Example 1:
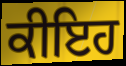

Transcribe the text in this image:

ਕੀਇਹ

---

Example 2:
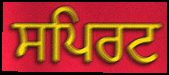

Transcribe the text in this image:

ਸਪਿਰਟ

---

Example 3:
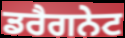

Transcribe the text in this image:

ਡਰੈਗਨੇਟ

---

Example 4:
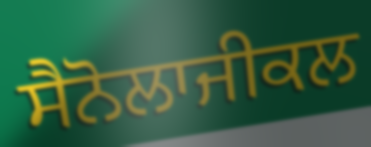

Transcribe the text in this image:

ਸੈਨੋਲਾਜੀਕਲ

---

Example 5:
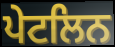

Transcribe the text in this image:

ਪੇਟਲਿਨ